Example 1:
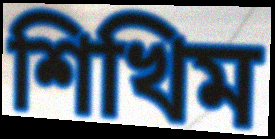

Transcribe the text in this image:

শিখিম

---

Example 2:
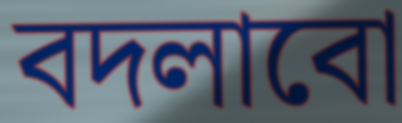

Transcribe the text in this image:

বদলাবো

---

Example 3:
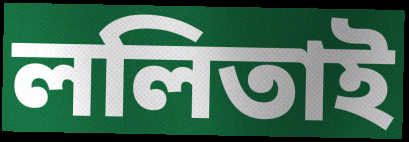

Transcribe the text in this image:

ললিতাই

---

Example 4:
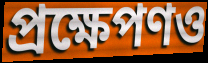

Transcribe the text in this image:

প্রক্ষেপণও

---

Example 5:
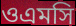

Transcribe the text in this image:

ওএমসি